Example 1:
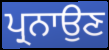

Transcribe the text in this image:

ਪ੍ਰਨਾਉਣ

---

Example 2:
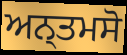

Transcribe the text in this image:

ਅਨ੍ਤਮਸੋ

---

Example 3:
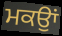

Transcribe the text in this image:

ਮਕਉਾਂ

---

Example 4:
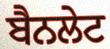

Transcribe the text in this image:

ਬੈਨਲੇਟ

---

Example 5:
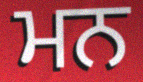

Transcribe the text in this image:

ਮਨ